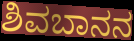
ಶಿವಬಾನನ